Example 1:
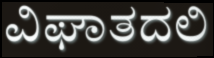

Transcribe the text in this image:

ವಿಘಾತದಲಿ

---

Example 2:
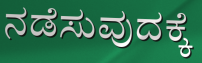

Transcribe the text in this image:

ನಡೆಸುವುದಕ್ಕೆ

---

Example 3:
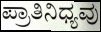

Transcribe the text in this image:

ಪ್ರಾತಿನಿಧ್ಯವು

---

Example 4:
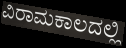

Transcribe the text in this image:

ವಿರಾಮಕಾಲದಲ್ಲಿ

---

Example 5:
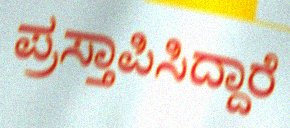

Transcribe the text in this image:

ಪ್ರಸ್ತಾಪಿಸಿದ್ದಾರೆ